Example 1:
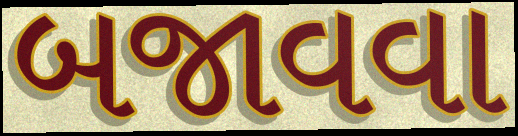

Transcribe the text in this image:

બજાવવા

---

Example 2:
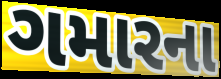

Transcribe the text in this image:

ગમારના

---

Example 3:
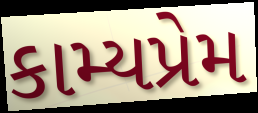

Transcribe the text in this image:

કામ્યપ્રેમ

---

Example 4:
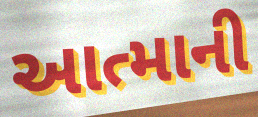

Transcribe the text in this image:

આત્માની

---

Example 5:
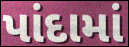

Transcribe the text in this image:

પાંદામાં